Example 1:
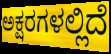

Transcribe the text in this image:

ಅಕ್ಷರಗಳಲ್ಲಿದೆ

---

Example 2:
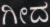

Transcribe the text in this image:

ಗೀದ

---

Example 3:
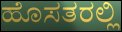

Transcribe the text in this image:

ಹೊಸತರಲ್ಲಿ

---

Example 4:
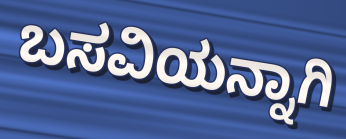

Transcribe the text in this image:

ಬಸವಿಯನ್ನಾಗಿ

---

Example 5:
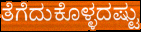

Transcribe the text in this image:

ತೆಗೆದುಕೊಳ್ಳದಷ್ಟು